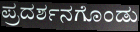
ಪ್ರದರ್ಶನಗೊಂಡು